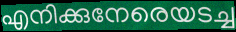
എനിക്കുനേരെയടച്ച